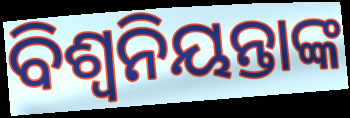
ବିଶ୍ବନିୟନ୍ତାଙ୍କ